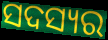
ସଦସ୍ୟର